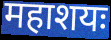
महाशयः